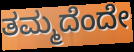
ತಮ್ಮದೆಂದೇ